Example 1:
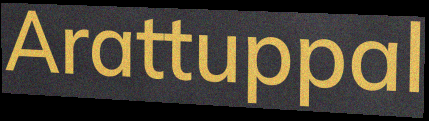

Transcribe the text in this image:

Arattuppal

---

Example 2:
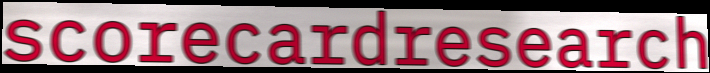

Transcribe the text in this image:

scorecardresearch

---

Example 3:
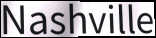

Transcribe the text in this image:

Nashville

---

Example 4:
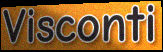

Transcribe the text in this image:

Visconti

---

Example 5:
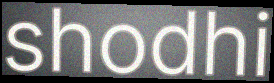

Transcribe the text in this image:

shodhi